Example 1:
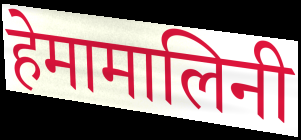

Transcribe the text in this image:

हेमामालिनी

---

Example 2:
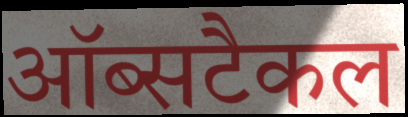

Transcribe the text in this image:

ऑब्सटैकल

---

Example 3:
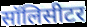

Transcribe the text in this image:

सॉलिसीटर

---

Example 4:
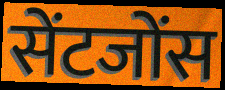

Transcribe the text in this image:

सेंटजोंस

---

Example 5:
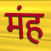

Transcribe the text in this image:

मंह